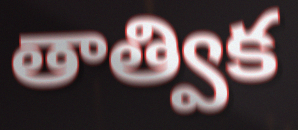
తాత్విక